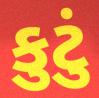
કુટું